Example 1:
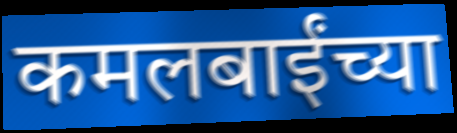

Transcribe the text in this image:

कमलबाईंच्या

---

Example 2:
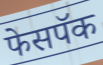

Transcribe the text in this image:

फेसपॅक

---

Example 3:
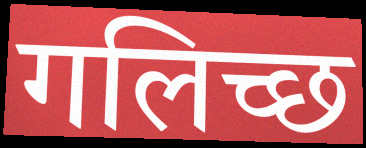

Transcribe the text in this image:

गलिच्छ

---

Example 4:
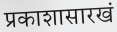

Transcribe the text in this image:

प्रकाशासारखं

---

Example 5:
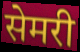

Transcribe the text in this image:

सेमरी